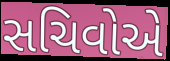
સચિવોએ